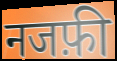
नजफ़ी